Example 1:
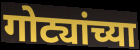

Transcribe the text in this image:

गोट्यांच्या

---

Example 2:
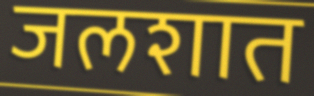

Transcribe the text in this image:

जलशात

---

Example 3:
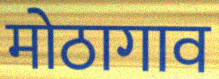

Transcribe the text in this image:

मोठागाव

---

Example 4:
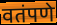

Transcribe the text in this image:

वतंपणे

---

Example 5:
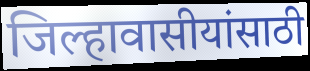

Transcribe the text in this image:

जिल्हावासीयांसाठी